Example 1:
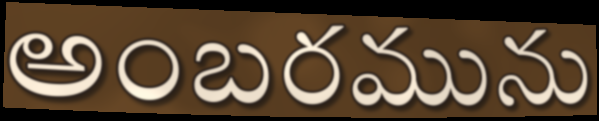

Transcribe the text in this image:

అంబరమును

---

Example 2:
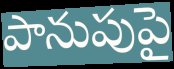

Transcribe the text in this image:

పానుపుపై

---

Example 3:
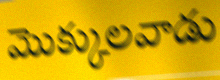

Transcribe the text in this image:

మొక్కులవాడు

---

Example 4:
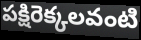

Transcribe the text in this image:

పక్షిరెక్కలవంటి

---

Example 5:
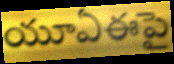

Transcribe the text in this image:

యూఏఈపై